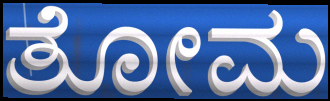
ತೋಮ